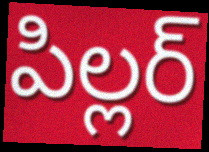
పిల్లర్